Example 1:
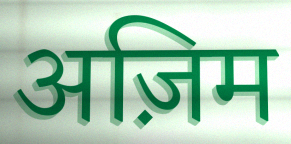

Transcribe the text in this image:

अज़िम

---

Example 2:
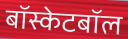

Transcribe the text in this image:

बॉस्केटबॉल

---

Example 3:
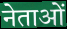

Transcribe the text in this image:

नेताओं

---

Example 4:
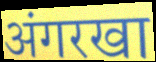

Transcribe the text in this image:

अंगरखा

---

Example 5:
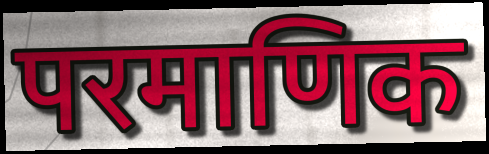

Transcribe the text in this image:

परमाणिक